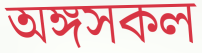
অঙ্গসকল